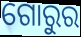
ଗୋରୁର